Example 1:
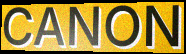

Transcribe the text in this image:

CANON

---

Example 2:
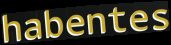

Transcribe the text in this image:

habentes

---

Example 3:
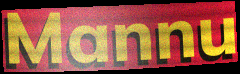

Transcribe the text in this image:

Mannu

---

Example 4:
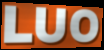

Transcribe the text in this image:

LUO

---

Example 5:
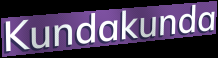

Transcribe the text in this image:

Kundakunda